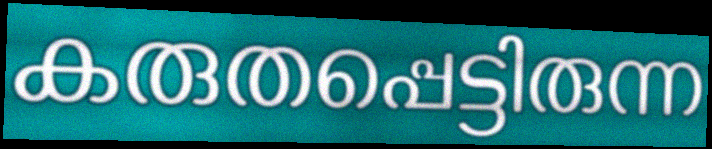
കരുതപ്പെട്ടിരുന്ന